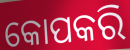
କୋପକରି